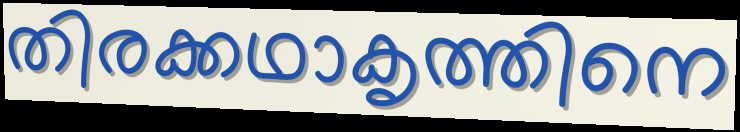
തിരക്കഥാകൃത്തിനെ